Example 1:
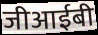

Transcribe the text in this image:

जीआईबी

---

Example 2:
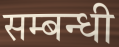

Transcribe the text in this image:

सम्‍बन्‍धी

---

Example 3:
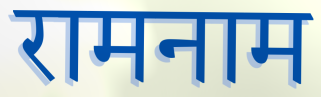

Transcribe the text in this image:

रामनाम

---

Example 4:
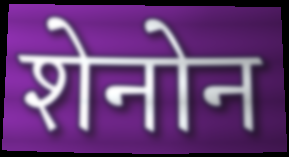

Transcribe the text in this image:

शेनोन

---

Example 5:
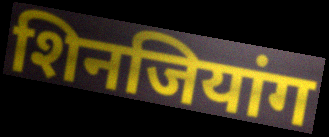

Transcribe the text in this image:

शिनजियांग